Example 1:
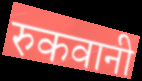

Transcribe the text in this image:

रुकवानी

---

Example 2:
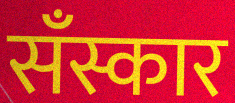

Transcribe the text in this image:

सँस्कार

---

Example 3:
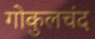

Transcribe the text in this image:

गोकुलचंद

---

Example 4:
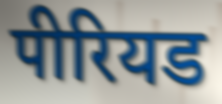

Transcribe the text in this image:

पीरियड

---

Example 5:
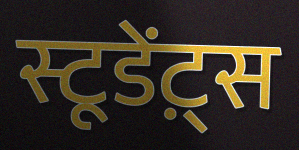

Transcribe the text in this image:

स्टूडेंट़्स